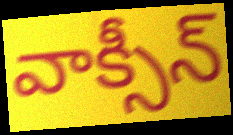
వాక్సీన్